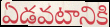
ఏడవటానికి